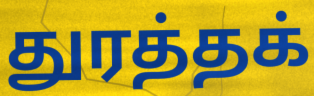
துரத்தக்